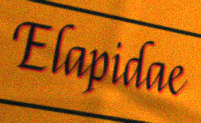
Elapidae